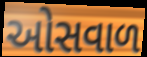
ઓસવાળ